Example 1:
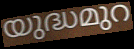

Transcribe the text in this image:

യുദ്ധമുറ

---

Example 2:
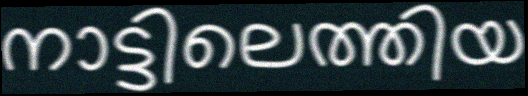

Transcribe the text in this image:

നാട്ടിലെത്തിയ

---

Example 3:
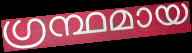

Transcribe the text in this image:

ഗ്രന്ഥമായ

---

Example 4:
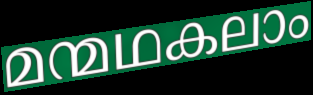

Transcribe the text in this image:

മന്മഥകലാം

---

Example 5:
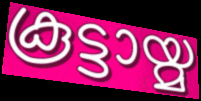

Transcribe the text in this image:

കൂട്ടായ്മ